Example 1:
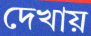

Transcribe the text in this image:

দেখায়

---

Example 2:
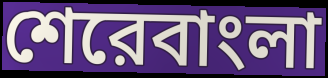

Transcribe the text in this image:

শেরেবাংলা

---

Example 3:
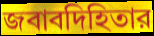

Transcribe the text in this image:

জবাবদিহিতার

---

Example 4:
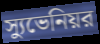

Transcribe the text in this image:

স্যুভেনিয়র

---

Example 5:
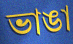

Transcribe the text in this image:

ভাঙা